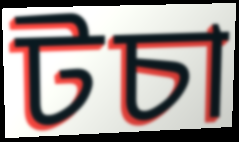
টচা